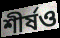
শীর্ষও